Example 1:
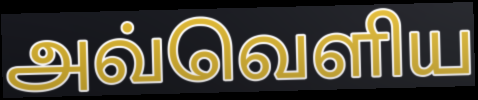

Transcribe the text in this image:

அவ்வெளிய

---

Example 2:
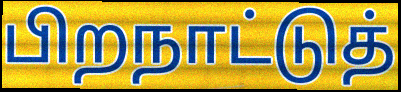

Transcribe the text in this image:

பிறநாட்டுத்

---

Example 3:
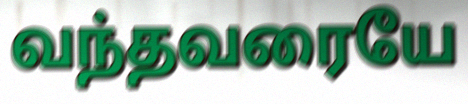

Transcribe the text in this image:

வந்தவரையே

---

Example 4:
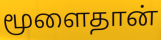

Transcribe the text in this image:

மூளைதான்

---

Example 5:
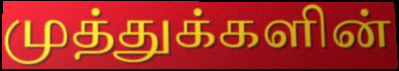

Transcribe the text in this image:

முத்துக்களின்